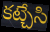
కట్చేసి